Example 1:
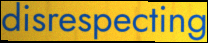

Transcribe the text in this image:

disrespecting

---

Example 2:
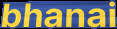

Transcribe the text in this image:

bhanai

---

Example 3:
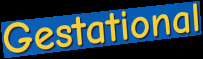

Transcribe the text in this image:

Gestational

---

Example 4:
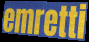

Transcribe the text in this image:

emretti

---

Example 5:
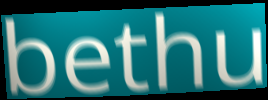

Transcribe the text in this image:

bethu